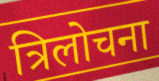
त्रिलोचना